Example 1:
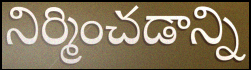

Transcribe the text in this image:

నిర్మించడాన్ని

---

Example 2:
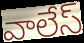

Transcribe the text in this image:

వాలేస్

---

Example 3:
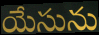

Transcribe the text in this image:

యేసును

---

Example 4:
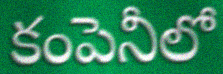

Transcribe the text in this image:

కంపెనీలో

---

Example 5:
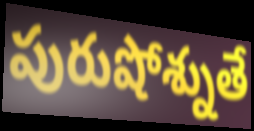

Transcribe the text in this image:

పురుషోశ్నుతే